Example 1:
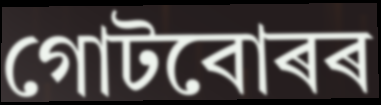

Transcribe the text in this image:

গোটবোৰৰ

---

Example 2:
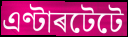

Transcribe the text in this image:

এণ্টাৰটেটে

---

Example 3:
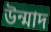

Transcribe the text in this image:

উন্মাদ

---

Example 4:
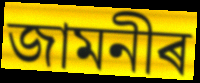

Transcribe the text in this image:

জামনীৰ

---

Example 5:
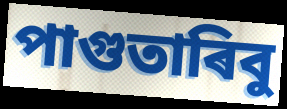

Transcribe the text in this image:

পাগুতাৰিবু